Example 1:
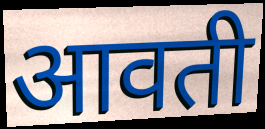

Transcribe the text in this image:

आवती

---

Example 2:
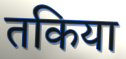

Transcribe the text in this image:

तकिया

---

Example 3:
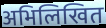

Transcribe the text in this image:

अभिलिखित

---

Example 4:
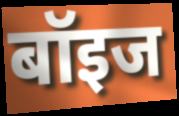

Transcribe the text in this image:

बॉइज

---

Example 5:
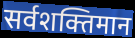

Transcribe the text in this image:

सर्वशक्‍तिमान